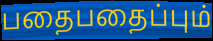
பதைபதைப்பும்